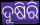
ଦୁଷିରି